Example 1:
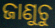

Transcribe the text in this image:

ଜାଣୁଚୁ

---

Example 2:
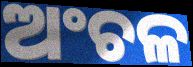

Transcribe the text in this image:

ଅଂଚଳ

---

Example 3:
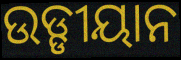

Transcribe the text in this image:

ଉଡ୍ଡୀୟାନ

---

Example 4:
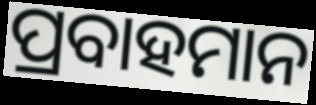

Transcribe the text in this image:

ପ୍ରବାହମାନ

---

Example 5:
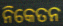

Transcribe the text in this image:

ନିକେତନ